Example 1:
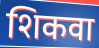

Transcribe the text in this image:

शिकवा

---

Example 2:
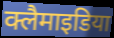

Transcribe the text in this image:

क्लैमाइडिया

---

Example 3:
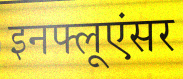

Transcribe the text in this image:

इनफ्लूएंसर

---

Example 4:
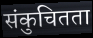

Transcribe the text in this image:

संकुचितता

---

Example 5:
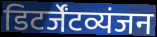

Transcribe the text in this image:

डिटर्जेंटव्यंजन